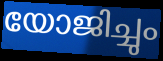
യോജിച്ചും